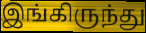
இங்கிருந்து